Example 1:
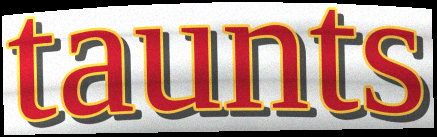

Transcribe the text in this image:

taunts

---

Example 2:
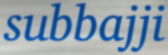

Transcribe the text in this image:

subbajji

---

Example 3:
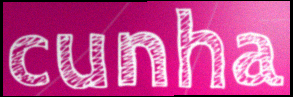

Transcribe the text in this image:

cunha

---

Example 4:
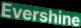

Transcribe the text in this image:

Evershine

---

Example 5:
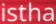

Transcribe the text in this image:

istha